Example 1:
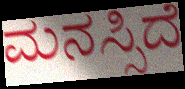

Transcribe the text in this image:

ಮನಸ್ಸಿದೆ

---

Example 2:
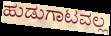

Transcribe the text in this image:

ಹುಡುಗಾಟವಲ್ಲ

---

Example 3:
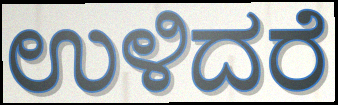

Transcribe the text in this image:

ಉಳಿದರೆ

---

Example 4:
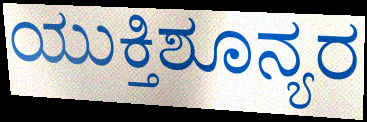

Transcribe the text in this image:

ಯುಕ್ತಿಶೂನ್ಯರ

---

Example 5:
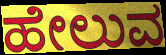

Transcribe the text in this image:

ಹೇಲುವ